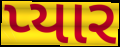
પ્યાર